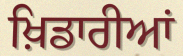
ਖ਼ਿਡਾਰੀਆਂ